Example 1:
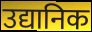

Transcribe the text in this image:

उद्यानिक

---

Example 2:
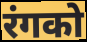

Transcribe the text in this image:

रंगको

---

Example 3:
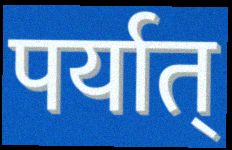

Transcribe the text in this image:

पर्यात्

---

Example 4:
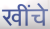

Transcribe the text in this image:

खींचे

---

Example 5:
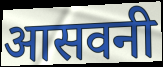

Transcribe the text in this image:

आसवनी